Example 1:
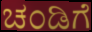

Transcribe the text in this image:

ಚಂಡಿಗೆ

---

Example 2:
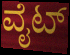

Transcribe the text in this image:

ವೈಟ್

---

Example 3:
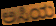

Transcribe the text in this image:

ಅಸಿಯ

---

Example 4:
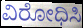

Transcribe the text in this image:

ವಿರೋಧಿಸಿ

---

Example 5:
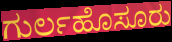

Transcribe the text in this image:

ಗುರ್ಲಹೊಸೂರು